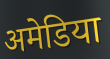
अमेडिया